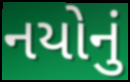
નયોનું